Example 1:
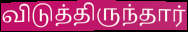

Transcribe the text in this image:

விடுத்திருந்தார்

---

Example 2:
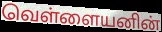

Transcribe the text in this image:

வெள்ளையனின்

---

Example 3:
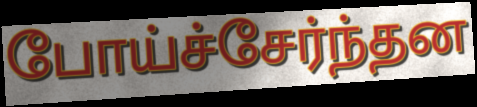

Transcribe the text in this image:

போய்ச்சேர்ந்தன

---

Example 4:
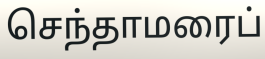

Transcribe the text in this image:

செந்தாமரைப்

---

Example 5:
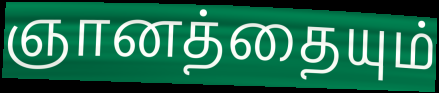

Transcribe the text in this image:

ஞானத்தையும்